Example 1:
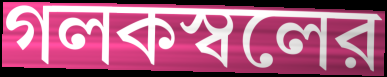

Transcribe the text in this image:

গলকস্বলের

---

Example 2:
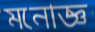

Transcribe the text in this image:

মনোজ্ঞ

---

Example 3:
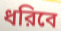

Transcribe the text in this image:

ধরিবে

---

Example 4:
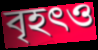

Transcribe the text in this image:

বৃহৎও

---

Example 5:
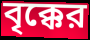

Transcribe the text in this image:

বৃক্কের